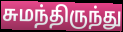
சுமந்திருந்து